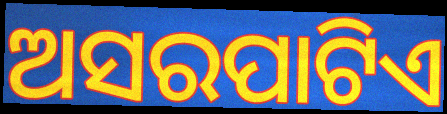
ଅସରପାଟିଏ